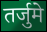
तर्जुमे